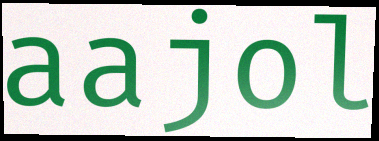
aajol